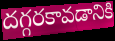
దగ్గరకావడానికి